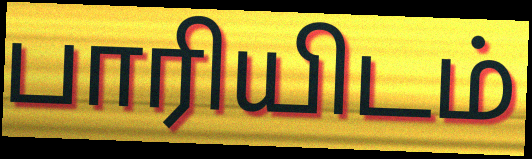
பாரியிடம்